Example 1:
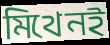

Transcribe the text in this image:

মিথেনই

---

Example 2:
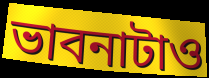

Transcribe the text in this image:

ভাবনাটাও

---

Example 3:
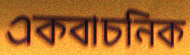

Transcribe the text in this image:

একবাচনিক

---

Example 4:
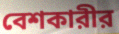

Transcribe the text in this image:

বেশকারীর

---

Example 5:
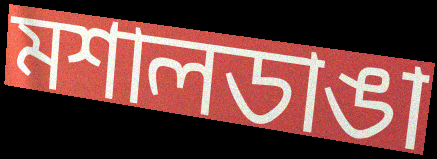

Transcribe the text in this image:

মশালডাঙা